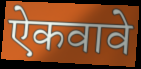
ऐकवावे